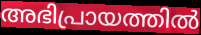
അഭിപ്രായത്തിൽ